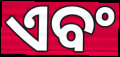
ଏବଂ